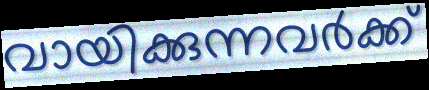
വായിക്കുന്നവർക്ക്